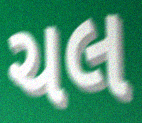
ચલ